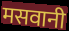
मसवानी